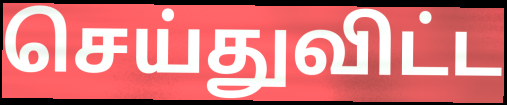
செய்துவிட்ட